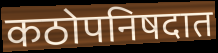
कठोपनिषदात